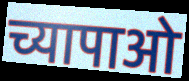
च्यापाओ